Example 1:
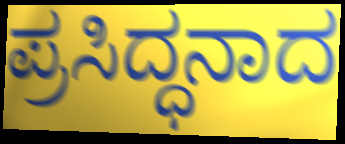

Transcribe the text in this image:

ಪ್ರಸಿದ್ಧನಾದ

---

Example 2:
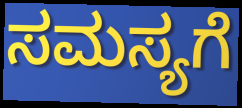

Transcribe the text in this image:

ಸಮಸ್ಯಗೆ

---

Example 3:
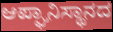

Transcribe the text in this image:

ಆಪ್ಘಾನಿಸ್ಥಾನದ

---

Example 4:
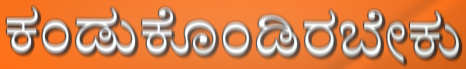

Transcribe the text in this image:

ಕಂಡುಕೊಂಡಿರಬೇಕು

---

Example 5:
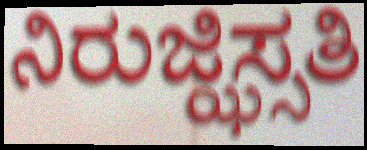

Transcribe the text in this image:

ನಿರುಜ್ಝಿಸ್ಸತಿ